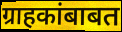
ग्राहकांबाबत